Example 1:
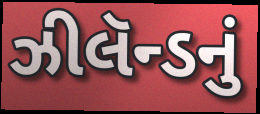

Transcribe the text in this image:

ઝીલૅન્ડનું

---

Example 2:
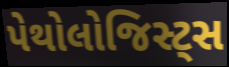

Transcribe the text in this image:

પેથોલોજિસ્ટ્સ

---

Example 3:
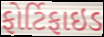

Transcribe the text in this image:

ફોર્ટિફાઇડ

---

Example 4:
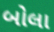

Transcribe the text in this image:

બોલા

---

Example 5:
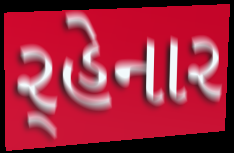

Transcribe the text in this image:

ર્‌હેનાર